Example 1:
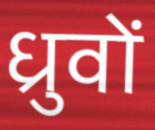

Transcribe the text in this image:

ध्रुवों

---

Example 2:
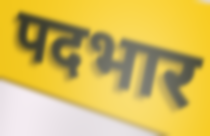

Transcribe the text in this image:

पदभार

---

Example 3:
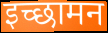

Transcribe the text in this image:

इच्छामन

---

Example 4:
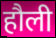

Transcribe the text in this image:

हौली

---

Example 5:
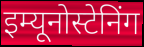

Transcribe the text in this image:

इम्यूनोस्टेनिंग